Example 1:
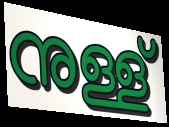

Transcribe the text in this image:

നുള്ള്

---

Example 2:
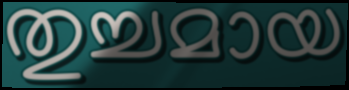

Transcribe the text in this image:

തുച്ചമായ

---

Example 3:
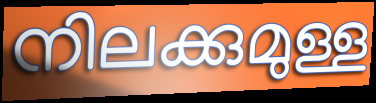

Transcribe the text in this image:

നിലക്കുമുള്ള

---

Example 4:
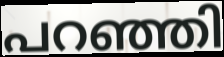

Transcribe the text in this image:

പറഞ്ഞി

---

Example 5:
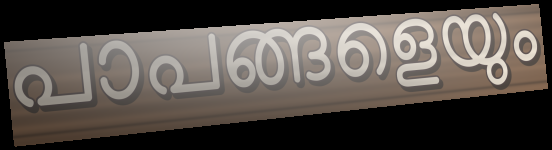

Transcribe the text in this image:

പാപങ്ങളെയും